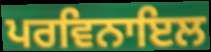
ਪਰਵਿਨਾਇਲ